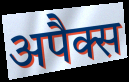
अपैक्स